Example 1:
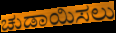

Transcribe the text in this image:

ಚುಡಾಯಿಸಲು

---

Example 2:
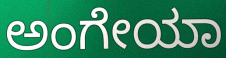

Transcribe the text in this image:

ಅಂಗೇಯಾ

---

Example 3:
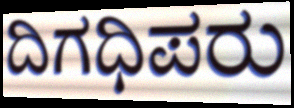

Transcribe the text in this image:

ದಿಗಧಿಪರು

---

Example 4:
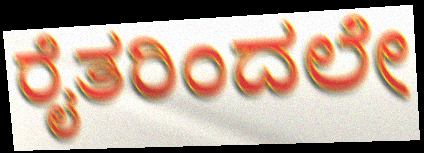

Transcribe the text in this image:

ರೈತರಿಂದಲೇ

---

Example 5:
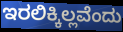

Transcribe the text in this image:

ಇರಲಿಕ್ಕಿಲ್ಲವೆಂದು